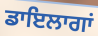
ਡਾਇਲਾਗਾਂ